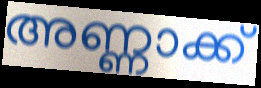
അണ്ണാക്ക്